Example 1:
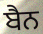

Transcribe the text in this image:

ਬੈਨ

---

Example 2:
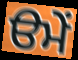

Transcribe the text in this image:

ੳਮੇਂ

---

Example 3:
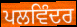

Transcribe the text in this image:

ਪਲਵਿੰਦਰ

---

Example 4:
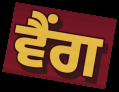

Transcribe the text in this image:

ਵੈਂਗ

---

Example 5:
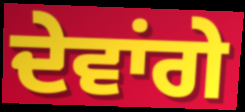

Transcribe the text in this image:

ਦੇਵਾਂਗੇ